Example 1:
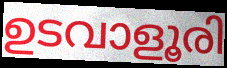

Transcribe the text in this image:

ഉടവാളൂരി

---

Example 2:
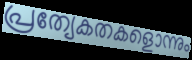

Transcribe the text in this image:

പ്രത്യേകതകളൊന്നും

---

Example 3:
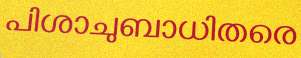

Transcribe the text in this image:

പിശാചുബാധിതരെ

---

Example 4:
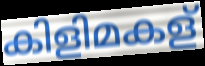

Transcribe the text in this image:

കിളിമകള്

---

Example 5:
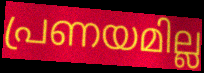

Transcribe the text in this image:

പ്രണയമില്ല